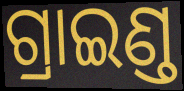
ଗ୍ରାଇଣ୍ଡ